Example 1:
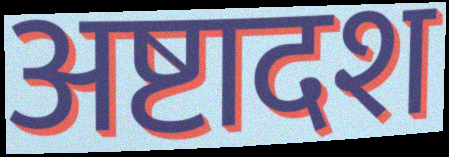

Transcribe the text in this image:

अष्टादश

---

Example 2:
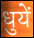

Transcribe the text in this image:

धुयें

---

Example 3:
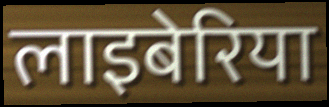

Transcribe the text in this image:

लाइबेरिया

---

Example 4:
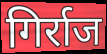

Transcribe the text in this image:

गिर्राज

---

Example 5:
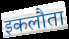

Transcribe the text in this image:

इकलौता